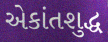
એકાંતશુદ્ધ